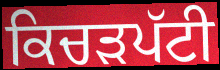
ਕਿਚੜਪੱਟੀ